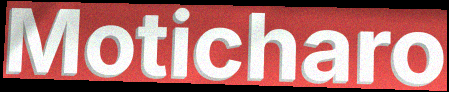
Moticharo